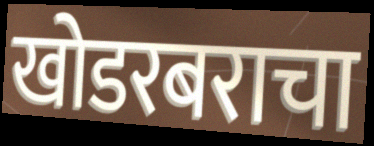
खोडरबराचा